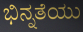
ಭಿನ್ನತೆಯು